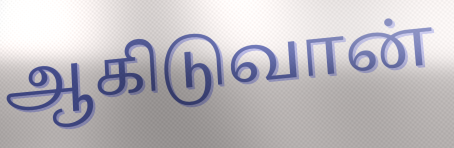
ஆகிடுவான்